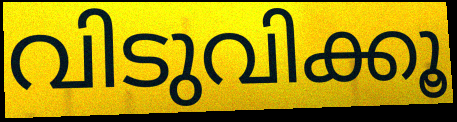
വിടുവിക്കൂ